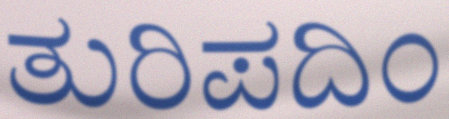
ತುರಿಪದಿಂ